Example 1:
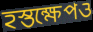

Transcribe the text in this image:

হস্তক্ষেপও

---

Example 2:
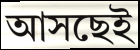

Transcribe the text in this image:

আসছেই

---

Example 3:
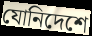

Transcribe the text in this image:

যোনিদেশে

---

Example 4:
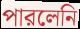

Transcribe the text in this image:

পারলেনি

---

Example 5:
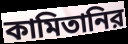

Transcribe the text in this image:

কামিতানির